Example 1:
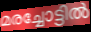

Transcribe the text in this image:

മരച്ചോട്ടിൽ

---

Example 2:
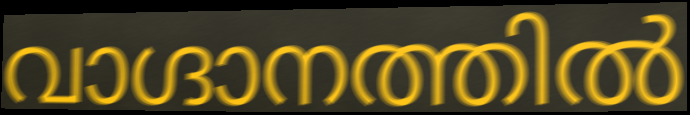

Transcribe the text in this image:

വാഗ്ദാനത്തിൽ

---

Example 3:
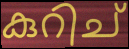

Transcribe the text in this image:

കുറിച്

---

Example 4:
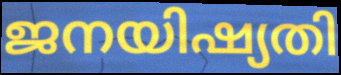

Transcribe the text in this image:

ജനയിഷ്യതി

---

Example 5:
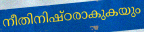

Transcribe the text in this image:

നീതിനിഷ്ഠരാകുകയും